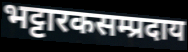
भट्टारकसम्प्रदाय